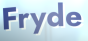
Fryde